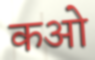
कओ